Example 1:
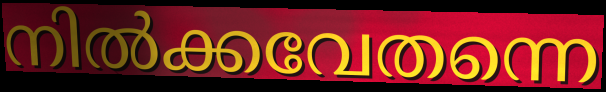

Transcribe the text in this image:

നിൽക്കവേതന്നെ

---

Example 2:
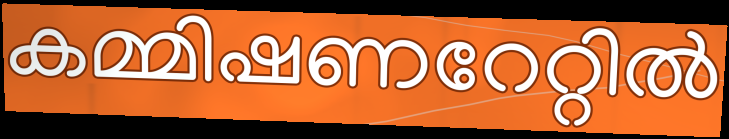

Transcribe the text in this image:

കമ്മിഷണറേറ്റിൽ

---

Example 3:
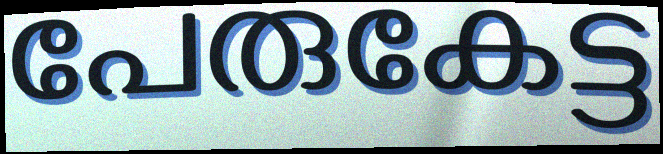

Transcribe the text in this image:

പേരുകേട്ട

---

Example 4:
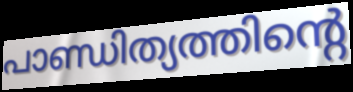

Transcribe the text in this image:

പാണ്ഡിത്യത്തിന്റെ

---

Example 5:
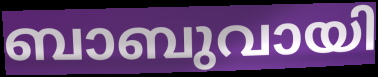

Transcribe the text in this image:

ബാബുവായി